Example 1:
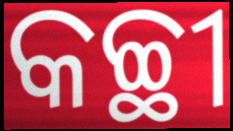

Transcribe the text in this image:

କଚ୍ଛୀ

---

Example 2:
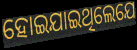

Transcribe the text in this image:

ହୋଇଯାଇଥିଲେଯେ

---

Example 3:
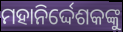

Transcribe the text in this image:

ମହାନିର୍ଦ୍ଦେଶକଙ୍କୁ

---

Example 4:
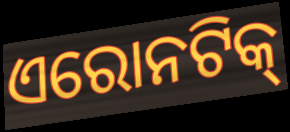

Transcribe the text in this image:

ଏରୋନଟିକ୍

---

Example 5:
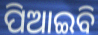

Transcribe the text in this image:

ପିଆଇବି